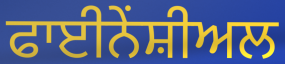
ਫਾਈਨੇਂਸ਼ੀਅਲ